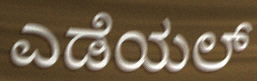
ಎಡೆಯಲ್